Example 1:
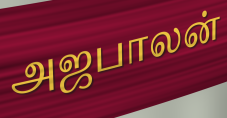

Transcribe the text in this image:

அஜபாலன்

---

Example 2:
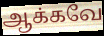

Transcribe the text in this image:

ஆக்கவே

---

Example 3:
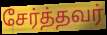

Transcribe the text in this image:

சேர்த்தவர்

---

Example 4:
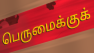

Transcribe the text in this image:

பெருமைக்குக்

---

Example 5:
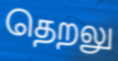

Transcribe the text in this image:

தெறலு